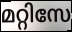
മറ്റിസേ